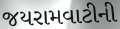
જયરામવાટીની